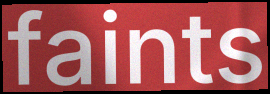
faints